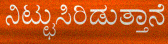
ನಿಟ್ಟುಸಿರಿಡುತ್ತಾನೆ